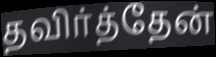
தவிர்த்தேன்